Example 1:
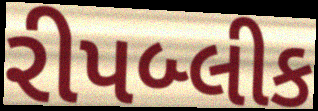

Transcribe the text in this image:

રીપબ્લીક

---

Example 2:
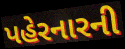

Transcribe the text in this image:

પહેરનારની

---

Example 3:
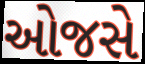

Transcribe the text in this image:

ઓજસે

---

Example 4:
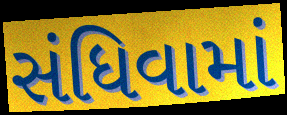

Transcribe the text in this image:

સંધિવામાં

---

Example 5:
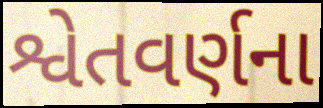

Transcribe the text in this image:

શ્વેતવર્ણના